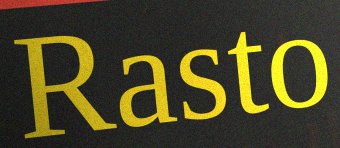
Rasto